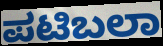
ಪಟಿಬಲಾ